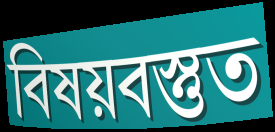
বিষয়বস্তুত